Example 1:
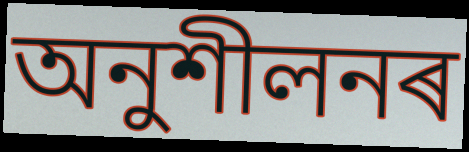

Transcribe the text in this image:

অনুশীলনৰ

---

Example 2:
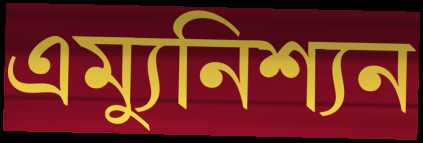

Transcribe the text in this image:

এম্যুনিশ্যন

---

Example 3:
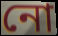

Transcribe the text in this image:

নো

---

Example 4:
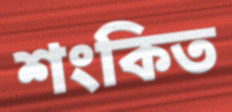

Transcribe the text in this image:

শংকিত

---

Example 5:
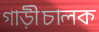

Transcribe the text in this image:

গাড়ীচালক